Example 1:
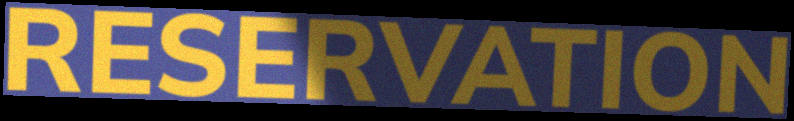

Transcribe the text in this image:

RESERVATION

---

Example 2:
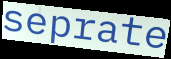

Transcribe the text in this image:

seprate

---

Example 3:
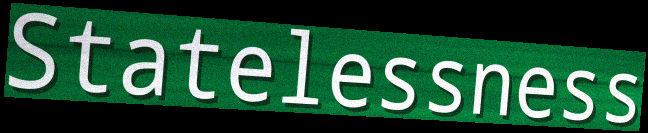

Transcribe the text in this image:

Statelessness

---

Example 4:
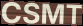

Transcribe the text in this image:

CSMT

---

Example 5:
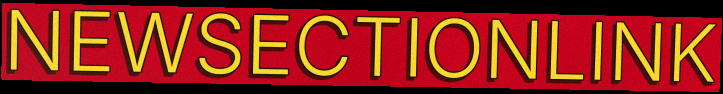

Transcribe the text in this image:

NEWSECTIONLINK